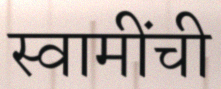
स्वामींची